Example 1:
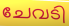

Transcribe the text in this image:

ചേവടി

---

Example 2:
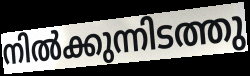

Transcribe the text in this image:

നിൽക്കുന്നിടത്തു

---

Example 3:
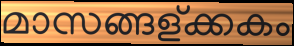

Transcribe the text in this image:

മാസങ്ങള്ക്കകം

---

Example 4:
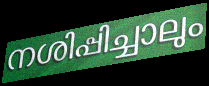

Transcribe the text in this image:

നശിപ്പിച്ചാലും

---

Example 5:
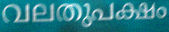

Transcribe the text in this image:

വലതുപക്ഷം